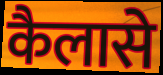
कैलासे